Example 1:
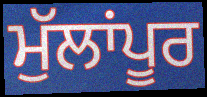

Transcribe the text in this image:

ਮੁੱਲਾਂਪੂਰ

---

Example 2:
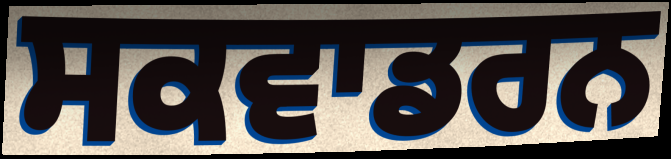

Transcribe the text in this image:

ਸਕਵਾਡਰਨ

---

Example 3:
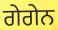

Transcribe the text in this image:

ਗੇਗੇਨ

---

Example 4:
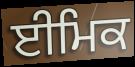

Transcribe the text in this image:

ਈਮਿਕ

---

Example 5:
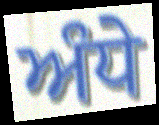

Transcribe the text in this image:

ਅੰਧੇ